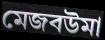
মেজবউমা